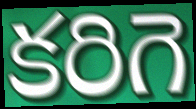
కరిగె